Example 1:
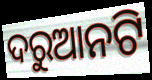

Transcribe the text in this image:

ଦରୁଆନଟି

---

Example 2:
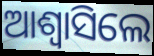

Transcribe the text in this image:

ଆଶ୍ୱାସିଲେ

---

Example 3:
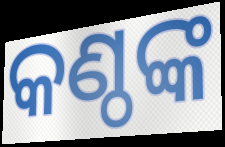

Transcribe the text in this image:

କଣ୍ଠଙ୍କ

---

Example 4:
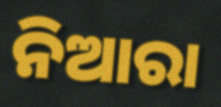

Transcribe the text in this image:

ନିଆରା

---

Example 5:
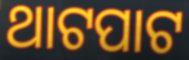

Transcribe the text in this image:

ଥାଟପାଟ